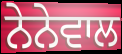
ਨੇਨੇਵਾਲ